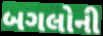
બગલોની